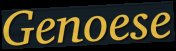
Genoese